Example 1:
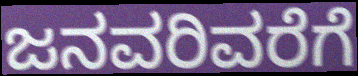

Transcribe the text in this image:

ಜನವರಿವರೆಗೆ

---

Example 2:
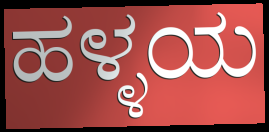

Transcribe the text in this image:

ಹಳ್ಳಯ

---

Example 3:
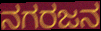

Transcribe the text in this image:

ನಗರಜನ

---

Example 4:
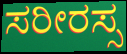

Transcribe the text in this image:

ಸರೀರಸ್ಸ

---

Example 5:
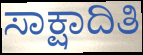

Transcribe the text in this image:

ಸಾಕ್ಷಾದಿತಿ